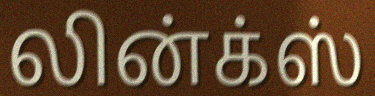
லின்க்ஸ்